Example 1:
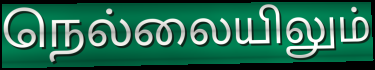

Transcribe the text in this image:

நெல்லையிலும்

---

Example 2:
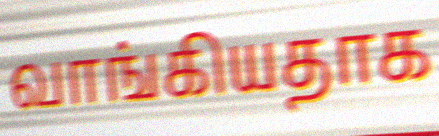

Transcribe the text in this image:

வாங்கியதாக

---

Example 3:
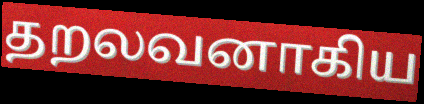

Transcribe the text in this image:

தறலவனாகிய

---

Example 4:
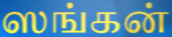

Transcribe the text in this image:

ஸங்கன்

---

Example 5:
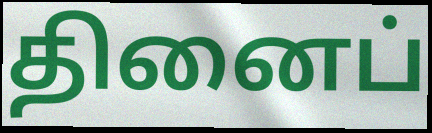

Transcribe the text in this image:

தினைப்